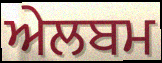
ਅੇਲਬਮ